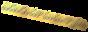
ఎదురుచూచుచున్నాము